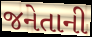
જનેતાની